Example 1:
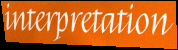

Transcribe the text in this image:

interpretation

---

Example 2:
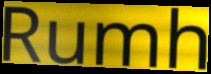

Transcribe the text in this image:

Rumh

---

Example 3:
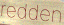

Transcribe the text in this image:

redden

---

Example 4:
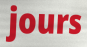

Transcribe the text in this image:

jours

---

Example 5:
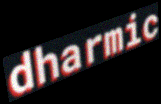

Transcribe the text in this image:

dharmic